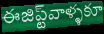
ఈజిప్ట్‌వాళ్ళకూ